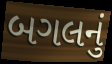
બગલનું